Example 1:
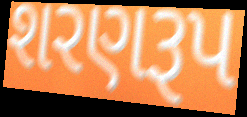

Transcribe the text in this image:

શરણરૂપ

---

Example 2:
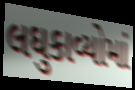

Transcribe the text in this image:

લઘુકાવ્યોમાં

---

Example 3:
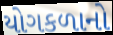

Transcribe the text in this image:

યોગકળાનો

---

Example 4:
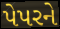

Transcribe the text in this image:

પેપરને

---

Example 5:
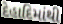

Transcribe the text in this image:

દેહાદિમાંથી